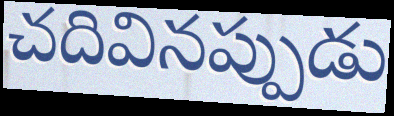
చదివినప్పుడు